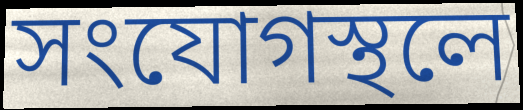
সংযোগস্থলে